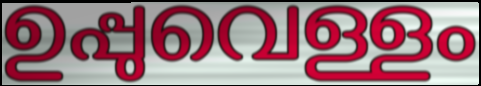
ഉപ്പുവെള്ളം